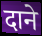
दाने